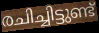
രചിച്ചിട്ടുണ്ട്